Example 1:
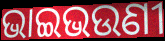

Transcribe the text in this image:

ଭାଇଭଉଣୀ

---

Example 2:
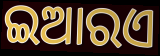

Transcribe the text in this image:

ଇଆରଏ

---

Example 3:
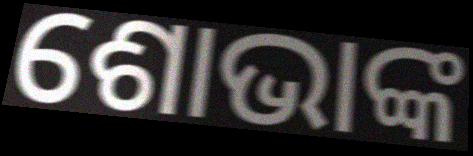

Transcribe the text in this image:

ଶୋଭାଙ୍କ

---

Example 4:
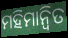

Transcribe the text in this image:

ମହିମାନ୍ଵିତ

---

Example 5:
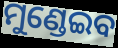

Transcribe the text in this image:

ମୁଣ୍ଡେଇବ